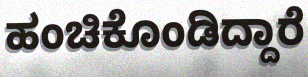
ಹಂಚಿಕೊಂಡಿದ್ದಾರೆ